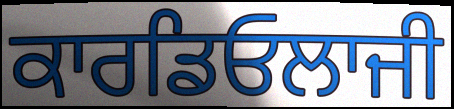
ਕਾਰਡਿਓਲਾਜੀ